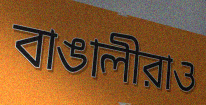
বাঙালীরাও